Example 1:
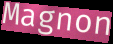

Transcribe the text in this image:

Magnon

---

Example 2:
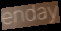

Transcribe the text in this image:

enday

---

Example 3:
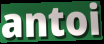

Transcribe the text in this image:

antoi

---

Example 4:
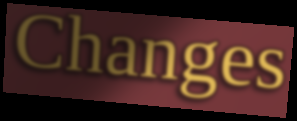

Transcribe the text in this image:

Changes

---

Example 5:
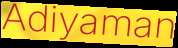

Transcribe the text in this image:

Adiyaman